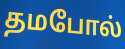
தமபோல்